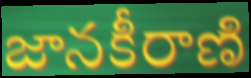
జానకీరాణి